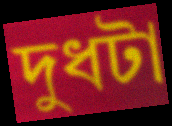
দুধটা